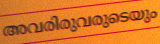
അവരിരുവരുടെയും